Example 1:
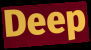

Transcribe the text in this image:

Deep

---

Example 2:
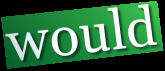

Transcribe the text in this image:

would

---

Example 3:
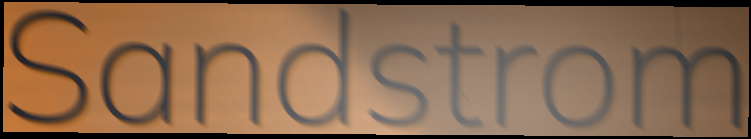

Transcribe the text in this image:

Sandstrom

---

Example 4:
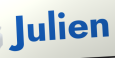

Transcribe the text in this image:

Julien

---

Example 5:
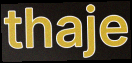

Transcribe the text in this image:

thaje